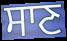
ਸਾਣ